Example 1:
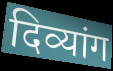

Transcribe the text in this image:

दिव्यांग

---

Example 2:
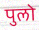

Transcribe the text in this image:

पुलो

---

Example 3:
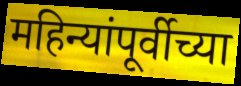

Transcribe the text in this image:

महिन्यांपूर्वीच्या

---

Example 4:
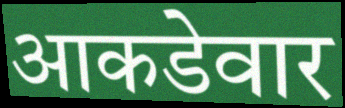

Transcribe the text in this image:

आकडेवार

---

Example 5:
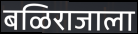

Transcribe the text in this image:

बळिराजाला